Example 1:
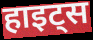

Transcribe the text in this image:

हाइट्स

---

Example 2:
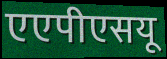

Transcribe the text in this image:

एएपीएसयू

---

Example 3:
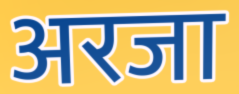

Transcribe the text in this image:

अरजा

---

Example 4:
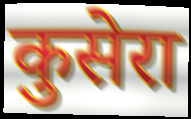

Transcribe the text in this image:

कुसेरा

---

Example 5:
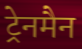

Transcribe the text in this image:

ट्रेनमैन